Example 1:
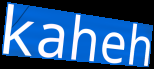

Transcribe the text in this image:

kaheh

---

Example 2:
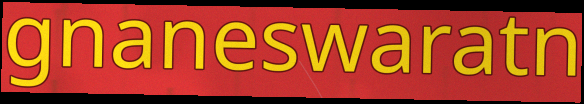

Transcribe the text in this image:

gnaneswaratn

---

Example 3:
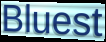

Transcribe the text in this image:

Bluest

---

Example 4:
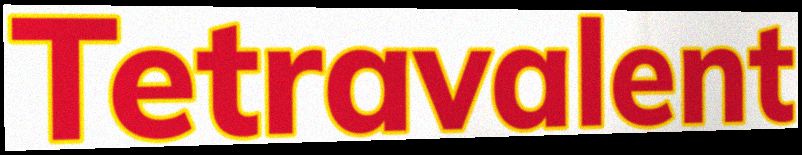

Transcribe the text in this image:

Tetravalent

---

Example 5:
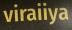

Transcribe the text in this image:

viraiiya